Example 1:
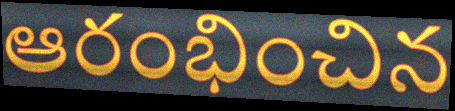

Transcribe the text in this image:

ఆరంభించిన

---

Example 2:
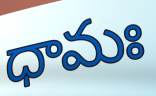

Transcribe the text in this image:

ధామః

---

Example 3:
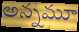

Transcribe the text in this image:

అన్నమూ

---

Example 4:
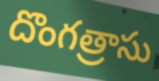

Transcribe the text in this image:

దొంగత్రాసు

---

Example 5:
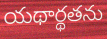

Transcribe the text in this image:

యథార్థతను